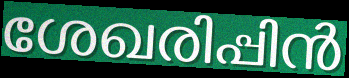
ശേഖരിപ്പിൻ